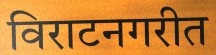
विराटनगरीत